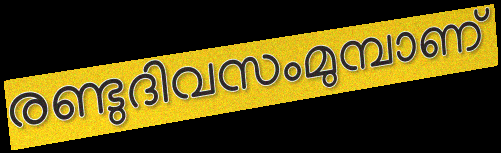
രണ്ടുദിവസംമുമ്പാണ്